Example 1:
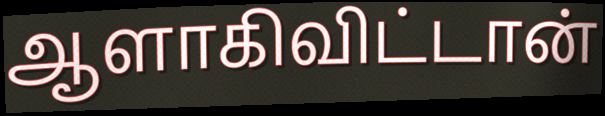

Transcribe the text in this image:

ஆளாகிவிட்டான்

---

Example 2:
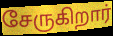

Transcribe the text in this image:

சேருகிறார்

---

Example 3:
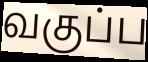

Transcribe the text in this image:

வகுப்ப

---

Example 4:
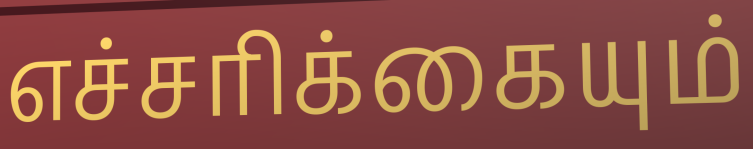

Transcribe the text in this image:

எச்சரிக்கையும்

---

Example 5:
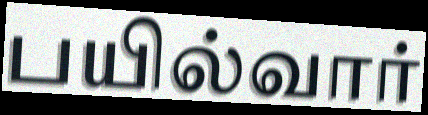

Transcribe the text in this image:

பயில்வார்